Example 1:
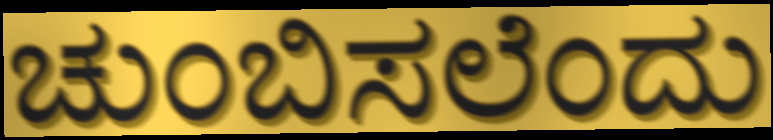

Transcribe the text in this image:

ಚುಂಬಿಸಲೆಂದು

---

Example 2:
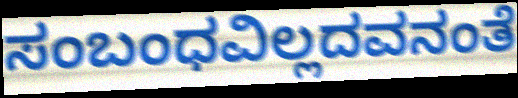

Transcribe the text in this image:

ಸಂಬಂಧವಿಲ್ಲದವನಂತೆ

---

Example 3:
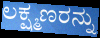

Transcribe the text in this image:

ಲಕ್ಷ್ಮಣರನ್ನು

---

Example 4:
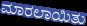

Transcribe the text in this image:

ಮಾರಲಾಯಿತು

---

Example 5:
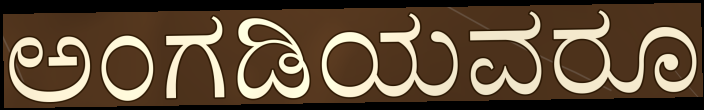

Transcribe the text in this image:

ಅಂಗಡಿಯವರೂ